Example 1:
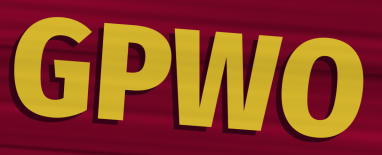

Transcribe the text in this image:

GPWO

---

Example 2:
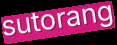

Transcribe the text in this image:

sutorang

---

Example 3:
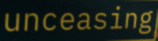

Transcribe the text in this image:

unceasing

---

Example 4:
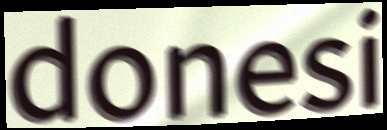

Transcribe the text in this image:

donesi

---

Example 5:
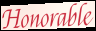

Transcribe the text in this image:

Honorable